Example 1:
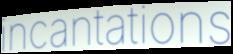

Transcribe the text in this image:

incantations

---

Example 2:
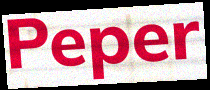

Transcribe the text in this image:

Peper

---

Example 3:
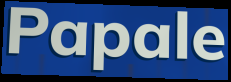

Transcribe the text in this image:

Papale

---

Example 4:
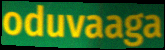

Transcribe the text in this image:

oduvaaga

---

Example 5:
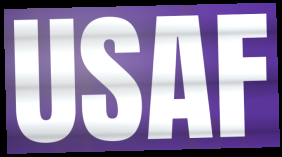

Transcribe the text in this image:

USAF